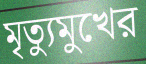
মৃত্যুমুখের